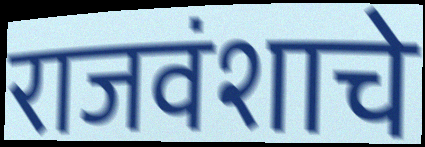
राजवंशाचे